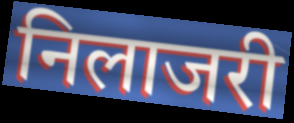
निलाजरी